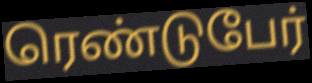
ரெண்டுபேர்